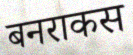
बनराकस